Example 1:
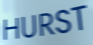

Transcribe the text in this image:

HURST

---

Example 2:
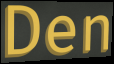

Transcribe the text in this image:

Den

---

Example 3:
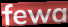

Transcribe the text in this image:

fewa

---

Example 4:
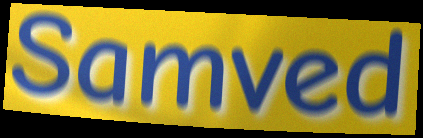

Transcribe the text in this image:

Samved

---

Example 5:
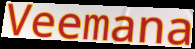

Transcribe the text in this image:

Veemana